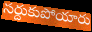
సర్దుకుపోయారు